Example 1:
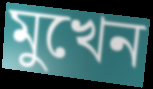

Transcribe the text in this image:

মুখেন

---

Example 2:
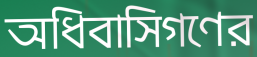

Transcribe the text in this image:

অধিবাসিগণের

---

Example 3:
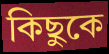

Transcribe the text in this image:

কিছুকে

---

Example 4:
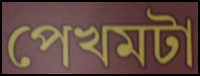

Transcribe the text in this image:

পেখমটা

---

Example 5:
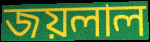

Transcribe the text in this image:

জয়লাল